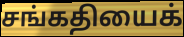
சங்கதியைக்